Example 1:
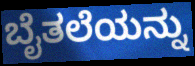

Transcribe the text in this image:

ಬೈತಲೆಯನ್ನು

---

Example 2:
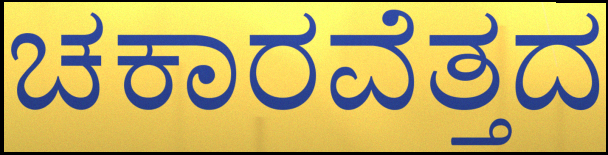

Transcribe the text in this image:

ಚಕಾರವೆತ್ತದ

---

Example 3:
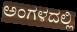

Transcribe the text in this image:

ಅಂಗಳದಲ್ಲಿ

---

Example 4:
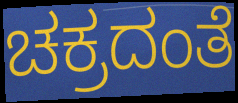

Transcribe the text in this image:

ಚಕ್ರದಂತೆ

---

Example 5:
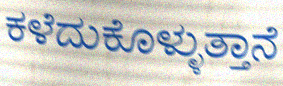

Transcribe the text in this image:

ಕಳೆದುಕೊಳ್ಳುತ್ತಾನೆ